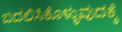
ಬದಲಿಸಿಕೊಳ್ಳುವುದಕ್ಕೆ